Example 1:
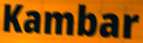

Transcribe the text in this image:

Kambar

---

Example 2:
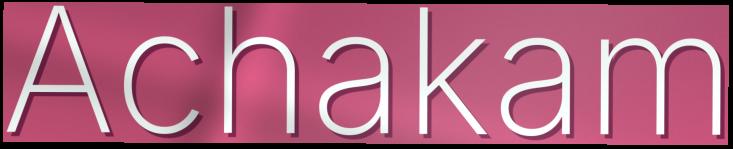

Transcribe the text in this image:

Achakam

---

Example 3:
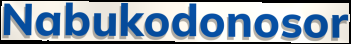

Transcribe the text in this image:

Nabukodonosor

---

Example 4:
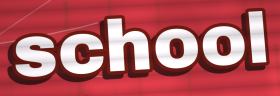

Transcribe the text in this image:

school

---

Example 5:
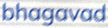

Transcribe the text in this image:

bhagavad